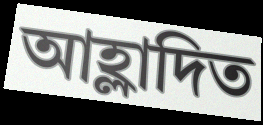
আহ্লাদিত